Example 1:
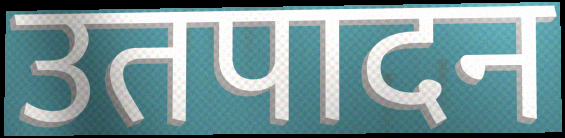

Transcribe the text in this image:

उतपादन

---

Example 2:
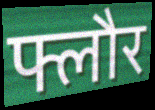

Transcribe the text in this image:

फ्लौर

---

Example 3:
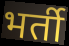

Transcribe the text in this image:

भर्ती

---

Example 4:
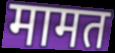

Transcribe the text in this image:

मामत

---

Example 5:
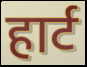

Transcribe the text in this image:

हार्ट